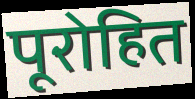
पूरोहित